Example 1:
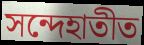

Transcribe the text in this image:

সন্দেহাতীত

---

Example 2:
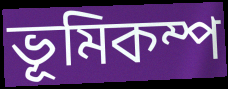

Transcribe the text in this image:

ভূমিকম্প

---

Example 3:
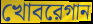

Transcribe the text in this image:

খোবরেগান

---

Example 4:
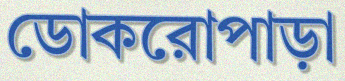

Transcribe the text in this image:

ডোকরোপাড়া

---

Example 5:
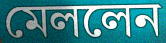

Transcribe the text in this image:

মেললেন